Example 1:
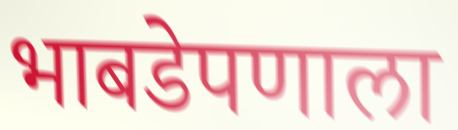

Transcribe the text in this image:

भाबडेपणाला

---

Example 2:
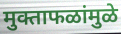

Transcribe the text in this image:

मुक्ताफळांमुळे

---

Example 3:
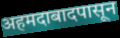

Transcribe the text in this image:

अहमदाबादपासून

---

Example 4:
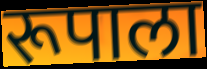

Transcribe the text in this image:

रूपाला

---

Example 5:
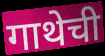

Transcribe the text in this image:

गाथेची